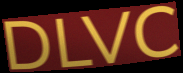
DLVC